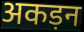
अकड़न